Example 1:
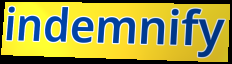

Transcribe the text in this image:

indemnify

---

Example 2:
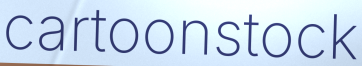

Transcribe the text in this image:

cartoonstock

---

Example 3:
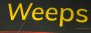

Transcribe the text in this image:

Weeps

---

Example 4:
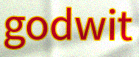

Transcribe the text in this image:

godwit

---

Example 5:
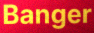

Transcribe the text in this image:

Banger